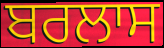
ਬਰਲਾਸ